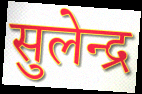
सुलेन्द्र